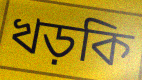
খড়কি